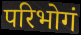
परिभोगं